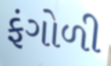
ફંગોળી